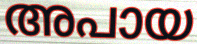
അപായ